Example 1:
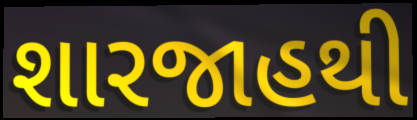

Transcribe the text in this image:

શારજાહથી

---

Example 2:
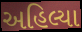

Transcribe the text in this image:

અહિલ્યા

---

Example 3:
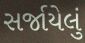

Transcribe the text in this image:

સર્જાયેલું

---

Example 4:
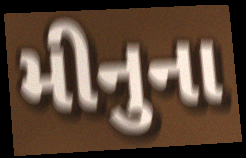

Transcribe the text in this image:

મીનુના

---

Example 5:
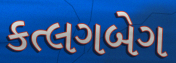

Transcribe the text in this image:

કત્લગબેગ